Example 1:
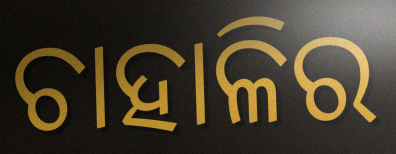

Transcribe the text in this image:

ଚାହାଳିର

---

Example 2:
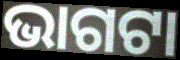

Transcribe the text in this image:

ଭାଗଟା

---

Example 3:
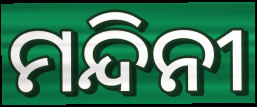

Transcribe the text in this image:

ମନ୍ଦିନୀ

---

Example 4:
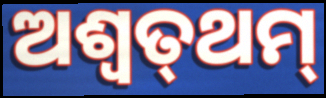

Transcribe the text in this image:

ଅଶ୍ୱତ୍‌ଥମ୍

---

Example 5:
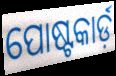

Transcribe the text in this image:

ପୋଷ୍ଟକାର୍ଡ଼